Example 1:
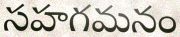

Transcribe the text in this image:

సహగమనం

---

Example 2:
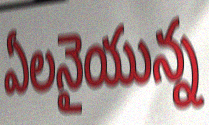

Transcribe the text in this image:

ఏలనైయున్న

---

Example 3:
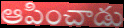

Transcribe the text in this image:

ఆపించాడు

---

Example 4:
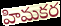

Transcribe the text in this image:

హిమకర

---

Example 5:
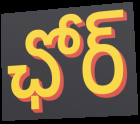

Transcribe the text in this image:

ఛోర్